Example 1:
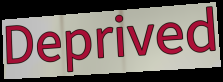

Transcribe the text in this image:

Deprived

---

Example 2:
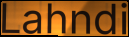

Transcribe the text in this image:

Lahndi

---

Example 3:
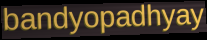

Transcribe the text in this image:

bandyopadhyay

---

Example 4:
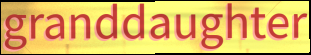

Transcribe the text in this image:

granddaughter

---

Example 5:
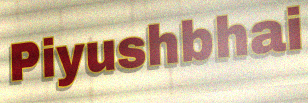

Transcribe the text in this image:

Piyushbhai